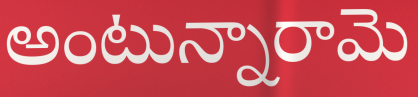
అంటున్నారామె